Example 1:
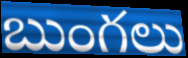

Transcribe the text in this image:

బుంగలు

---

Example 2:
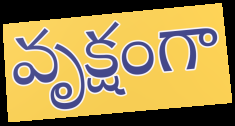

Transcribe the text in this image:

వృక్షంగా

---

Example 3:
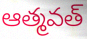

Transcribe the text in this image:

ఆత్మవత్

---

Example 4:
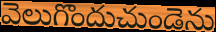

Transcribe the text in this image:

వెలుగొందుచుండెను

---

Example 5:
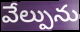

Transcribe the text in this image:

వేల్పును